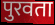
पुरवता